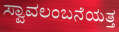
ಸ್ವಾವಲಂಬನೆಯತ್ತ